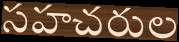
సహచరుల